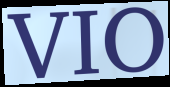
VIO